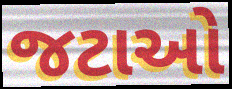
જટાઓ